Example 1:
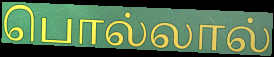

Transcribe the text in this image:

பொல்லால்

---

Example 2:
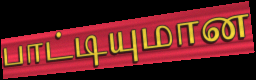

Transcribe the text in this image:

பாட்டியுமான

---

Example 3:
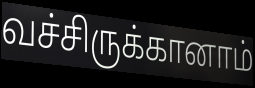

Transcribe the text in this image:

வச்சிருக்கானாம்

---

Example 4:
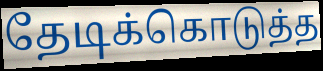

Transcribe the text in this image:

தேடிக்கொடுத்த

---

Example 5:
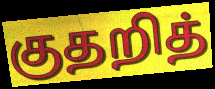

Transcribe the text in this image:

குதறித்